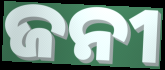
ଜନୀ